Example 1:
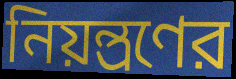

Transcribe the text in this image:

নিয়ন্ত্রণের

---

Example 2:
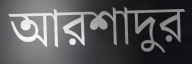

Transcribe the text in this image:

আরশাদুর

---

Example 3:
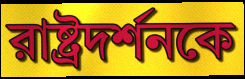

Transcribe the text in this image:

রাষ্ট্রদর্শনকে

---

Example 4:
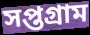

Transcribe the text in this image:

সপ্তগ্রাম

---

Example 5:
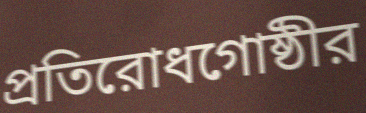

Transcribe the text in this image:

প্রতিরোধগোষ্ঠীর